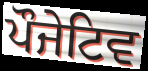
ਪੌਜੇਟਿਵ